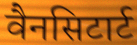
वैनसिटार्ट